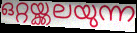
ഒറ്റയ്ക്കലയുന്ന